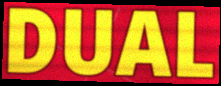
DUAL